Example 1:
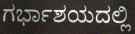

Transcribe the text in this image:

ಗರ್ಭಾಶಯದಲ್ಲಿ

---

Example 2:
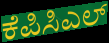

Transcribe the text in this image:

ಕೆಪಿಸಿಎಲ್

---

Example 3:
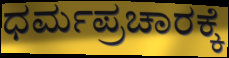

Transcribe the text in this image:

ಧರ್ಮಪ್ರಚಾರಕ್ಕೆ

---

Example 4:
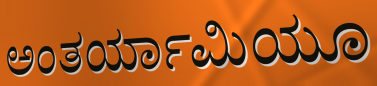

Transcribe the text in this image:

ಅಂತರ್ಯಾಮಿಯೂ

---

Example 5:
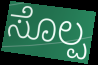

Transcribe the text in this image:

ಸೊಲ್ಪ